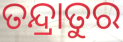
ତନ୍ଦ୍ରାତୁର